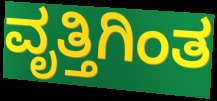
ವೃತ್ತಿಗಿಂತ